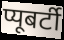
प्यूबर्टी